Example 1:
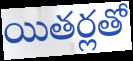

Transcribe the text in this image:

యితర్లతో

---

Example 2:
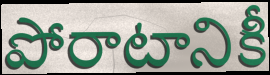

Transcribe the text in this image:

పోరాటానికీ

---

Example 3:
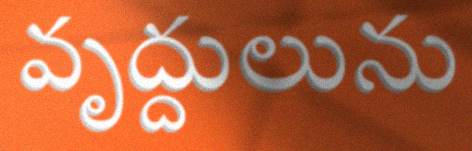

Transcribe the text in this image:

వృద్దులును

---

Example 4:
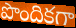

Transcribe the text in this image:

పొందికగా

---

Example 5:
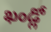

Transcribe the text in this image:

ఖండ్లో